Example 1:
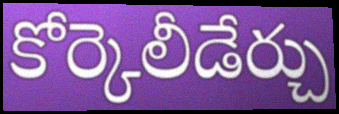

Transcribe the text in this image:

కోర్కెలీడేర్చు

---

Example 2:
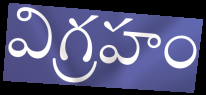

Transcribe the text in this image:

విగ్రహం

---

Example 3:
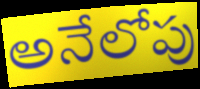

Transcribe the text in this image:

అనేలోపు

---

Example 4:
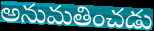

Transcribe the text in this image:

అనుమతించడు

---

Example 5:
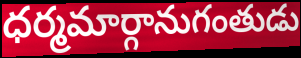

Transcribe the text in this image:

ధర్మమార్గానుగంతుడు